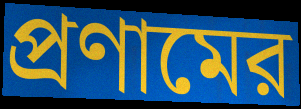
প্রণামের